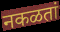
नकळतां